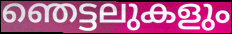
ഞെട്ടലുകളും